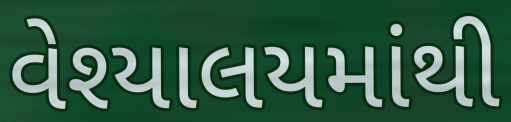
વેશ્યાલયમાંથી